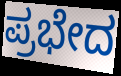
ಪ್ರಭೇದ